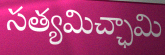
సత్యమిచ్ఛామి